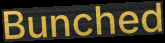
Bunched